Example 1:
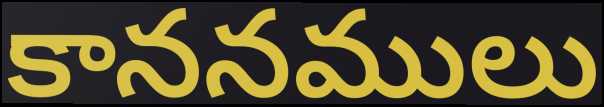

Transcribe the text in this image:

కాననములు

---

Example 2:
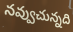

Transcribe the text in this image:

నవ్వుచున్నది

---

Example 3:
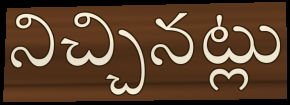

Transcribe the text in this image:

నిచ్చినట్లు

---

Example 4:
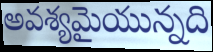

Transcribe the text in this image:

అవశ్యమైయున్నది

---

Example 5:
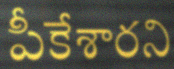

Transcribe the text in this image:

పీకేశారని